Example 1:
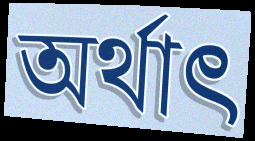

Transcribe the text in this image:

অর্থাৎ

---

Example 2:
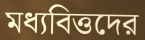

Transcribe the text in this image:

মধ্যবিত্তদের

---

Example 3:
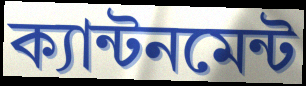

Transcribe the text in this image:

ক্যান্টনমেন্ট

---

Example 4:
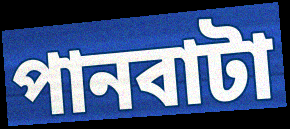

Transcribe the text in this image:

পানবাটা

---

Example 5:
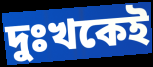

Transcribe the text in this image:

দুঃখকেই